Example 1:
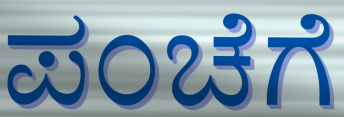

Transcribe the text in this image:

ಪಂಚೆಗೆ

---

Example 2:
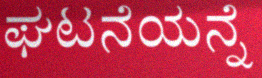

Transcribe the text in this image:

ಘಟನೆಯನ್ನೆ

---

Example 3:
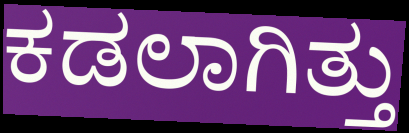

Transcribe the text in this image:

ಕಡಲಾಗಿತ್ತು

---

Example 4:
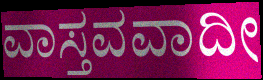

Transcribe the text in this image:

ವಾಸ್ತವವಾದೀ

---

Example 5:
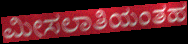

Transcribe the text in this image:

ಮೀಸಲಾತಿಯಂತಹ